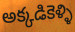
అక్కడికెళ్ళి